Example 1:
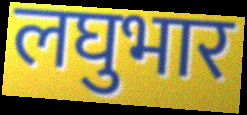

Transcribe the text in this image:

लघुभार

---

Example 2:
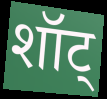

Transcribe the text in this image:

शॉट्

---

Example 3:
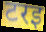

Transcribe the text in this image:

टरइ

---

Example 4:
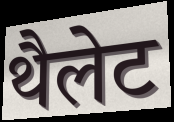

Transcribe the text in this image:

थैलेट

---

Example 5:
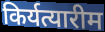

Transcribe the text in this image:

किर्यत्यारीम